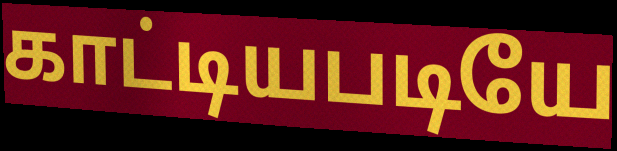
காட்டியபடியே